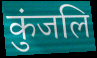
कुंजलि